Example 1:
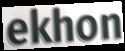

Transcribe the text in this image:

ekhon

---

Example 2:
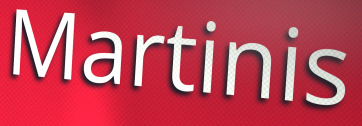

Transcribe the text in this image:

Martinis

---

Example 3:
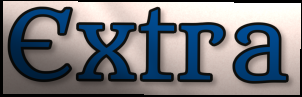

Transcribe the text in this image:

Extra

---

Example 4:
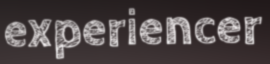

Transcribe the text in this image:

experiencer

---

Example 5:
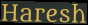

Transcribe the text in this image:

Haresh